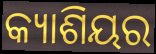
କ୍ୟାଶିୟର